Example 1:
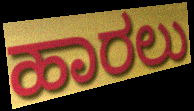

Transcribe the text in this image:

ಹಾರಲು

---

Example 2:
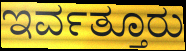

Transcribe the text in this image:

ಇರ್ವತ್ತೂರು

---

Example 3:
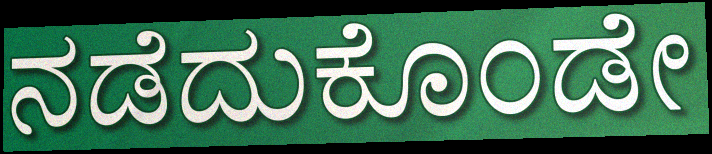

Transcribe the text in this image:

ನಡೆದುಕೊಂಡೇ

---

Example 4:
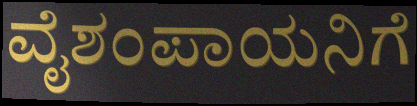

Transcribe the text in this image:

ವೈಶಂಪಾಯನಿಗೆ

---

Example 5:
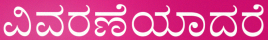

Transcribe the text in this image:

ವಿವರಣೆಯಾದರೆ